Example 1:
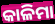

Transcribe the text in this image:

କାଳିମା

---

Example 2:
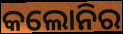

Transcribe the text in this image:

କଲୋନିର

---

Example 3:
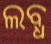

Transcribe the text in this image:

ଲବ୍ଧ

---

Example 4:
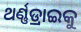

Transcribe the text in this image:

ଥର୍ଣ୍ଣଡ୍ରାଇକୁ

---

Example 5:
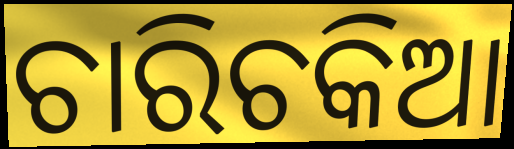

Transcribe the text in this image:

ଚାରିଚକିଆ